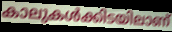
കാലുകൾക്കിടയിലാണ്